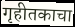
गृहीतकाचा